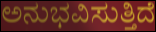
ಅನುಭವಿಸುತ್ತಿದೆ